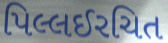
પિલ્લઈરચિત